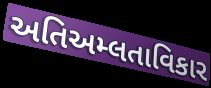
અતિઅમ્લતાવિકાર